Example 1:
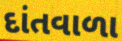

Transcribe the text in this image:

દાંતવાળા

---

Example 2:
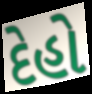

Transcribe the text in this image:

દેહો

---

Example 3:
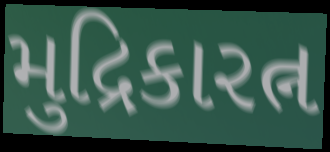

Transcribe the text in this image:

મુદ્રિકારત્ન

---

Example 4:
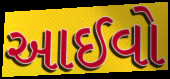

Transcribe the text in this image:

આઈવો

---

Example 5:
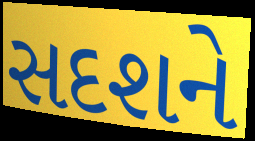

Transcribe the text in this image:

સદશને